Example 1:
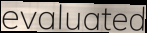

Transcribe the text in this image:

evaluated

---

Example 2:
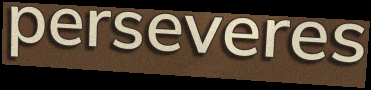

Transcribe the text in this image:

perseveres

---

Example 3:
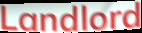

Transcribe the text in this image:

Landlord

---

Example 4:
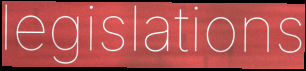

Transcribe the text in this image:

legislations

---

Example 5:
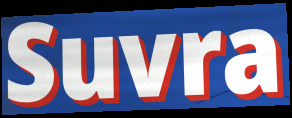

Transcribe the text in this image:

Suvra